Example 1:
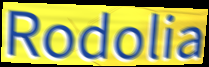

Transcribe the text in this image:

Rodolia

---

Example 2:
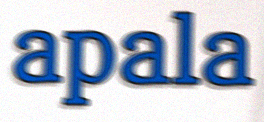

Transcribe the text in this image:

apala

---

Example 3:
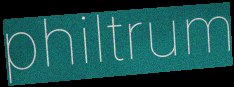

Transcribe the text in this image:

philtrum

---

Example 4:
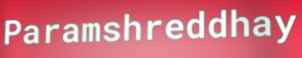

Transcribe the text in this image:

Paramshreddhay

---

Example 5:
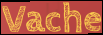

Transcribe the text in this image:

Vache